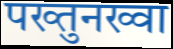
पख्तुनख्वा